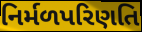
નિર્મળપરિણતિ